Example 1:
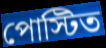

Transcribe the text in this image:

পোস্টিত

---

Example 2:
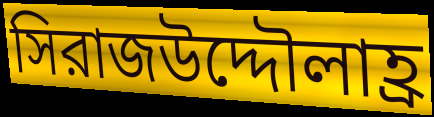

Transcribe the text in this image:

সিরাজউদ্দৌলাহ্র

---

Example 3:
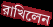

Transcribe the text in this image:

রাখিলেন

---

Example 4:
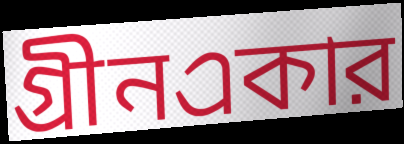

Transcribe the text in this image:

গ্রীনএকার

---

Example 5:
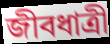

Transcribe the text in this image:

জীবধাত্রী